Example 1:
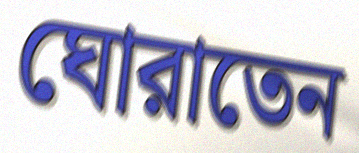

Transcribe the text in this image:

ঘোরাতেন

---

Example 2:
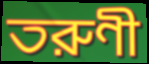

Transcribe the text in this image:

তরুণী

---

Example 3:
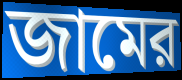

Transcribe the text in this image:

জামের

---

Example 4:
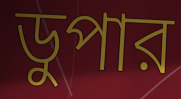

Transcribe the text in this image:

ডুপার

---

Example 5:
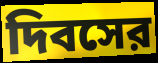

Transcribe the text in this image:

দিবসের